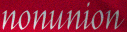
nonunion